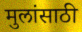
मुलांसाठी